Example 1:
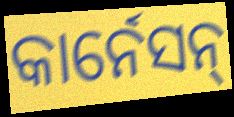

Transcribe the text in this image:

କାର୍ନେସନ୍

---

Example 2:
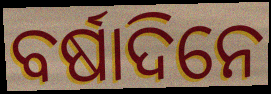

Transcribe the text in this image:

ବର୍ଷାଦିନେ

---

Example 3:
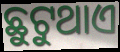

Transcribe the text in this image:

ଛୁଟୁଥାଏ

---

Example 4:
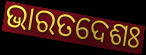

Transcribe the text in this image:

ଭାରତଦେଶଃ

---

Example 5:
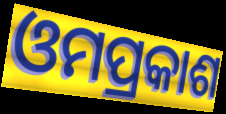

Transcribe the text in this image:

ଓମପ୍ରକାଶ